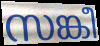
സങ്കീ